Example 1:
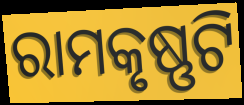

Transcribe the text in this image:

ରାମକୃଷ୍ଣଟି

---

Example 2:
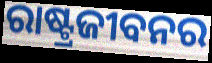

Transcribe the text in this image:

ରାଷ୍ଟ୍ରଜୀବନର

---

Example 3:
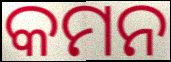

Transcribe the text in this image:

କମନ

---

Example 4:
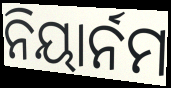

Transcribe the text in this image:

ନିୟାର୍ନମ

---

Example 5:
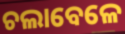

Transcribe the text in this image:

ଚଲାବେଳେ